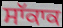
ਸਾੱਕਾਕ